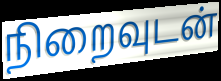
நிறைவுடன்